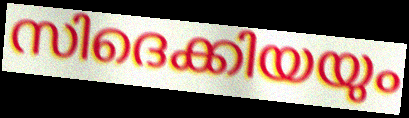
സിദെക്കിയയും